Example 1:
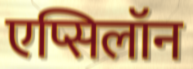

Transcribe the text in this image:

एप्सिलॉन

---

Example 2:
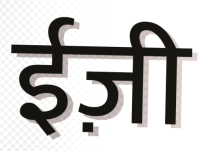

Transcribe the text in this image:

ईज़ी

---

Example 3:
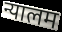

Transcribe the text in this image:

न्यालम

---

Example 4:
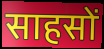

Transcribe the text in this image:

साहसों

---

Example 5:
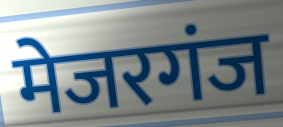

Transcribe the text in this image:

मेजरगंज